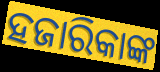
ହଜାରିକାଙ୍କ